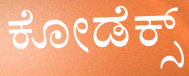
ಕೋಡೆಕ್ಸ್